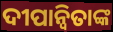
ଦୀପାନ୍ୱିତାଙ୍କ